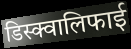
डिस्क्वालिफाई